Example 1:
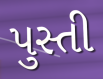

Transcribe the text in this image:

પુસ્તી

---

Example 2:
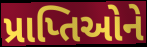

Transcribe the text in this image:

પ્રાપ્તિઓને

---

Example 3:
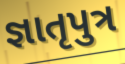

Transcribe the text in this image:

જ્ઞાતૃપુત્ર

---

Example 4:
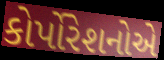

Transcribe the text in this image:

કોર્પોરેશનોએ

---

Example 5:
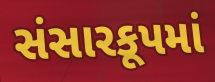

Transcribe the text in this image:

સંસારકૂપમાં